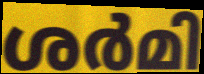
ശർമി